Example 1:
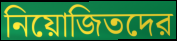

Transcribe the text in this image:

নিয়োজিতদের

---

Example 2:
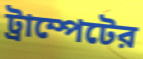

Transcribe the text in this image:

ট্রাম্পেটের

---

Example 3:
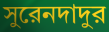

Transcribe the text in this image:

সুরেনদাদুর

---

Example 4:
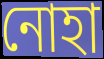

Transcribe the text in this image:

নোহা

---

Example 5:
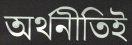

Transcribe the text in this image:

অর্থনীতিই